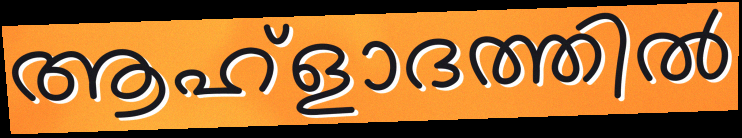
ആഹ്ളാദത്തിൽ